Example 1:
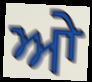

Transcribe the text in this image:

ਆੇ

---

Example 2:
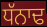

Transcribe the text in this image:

ਧੱਨਾਢ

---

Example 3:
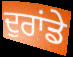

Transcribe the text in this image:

ਦੁਰਾਂਡੇ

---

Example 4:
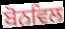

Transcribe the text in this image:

ਬੋਨਵਿਲ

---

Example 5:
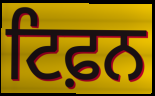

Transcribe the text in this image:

ਟਿਫ਼ਨ